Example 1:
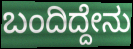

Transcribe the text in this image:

ಬಂದಿದ್ದೇನು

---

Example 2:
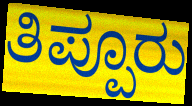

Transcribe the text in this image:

ತಿಪ್ಪೂರು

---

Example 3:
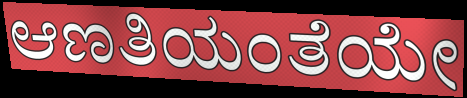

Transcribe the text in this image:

ಆಣತಿಯಂತೆಯೇ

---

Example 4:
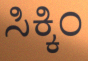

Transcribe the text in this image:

ಸಿಕ್ಕಿಂ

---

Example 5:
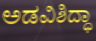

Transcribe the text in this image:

ಅಡವಿಶಿದ್ಧಾ